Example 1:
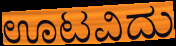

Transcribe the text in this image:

ಊಟವಿದು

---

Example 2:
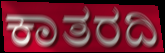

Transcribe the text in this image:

ಕಾತರದಿ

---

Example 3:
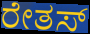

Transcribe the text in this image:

ರೇತಸ್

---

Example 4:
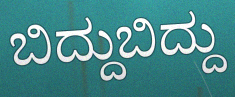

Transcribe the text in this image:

ಬಿದ್ದುಬಿದ್ದು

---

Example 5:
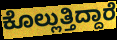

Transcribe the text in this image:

ಕೊಲ್ಲುತ್ತಿದ್ದಾರೆ